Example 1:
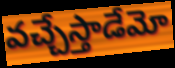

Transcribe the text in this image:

వచ్చేస్తాడేమో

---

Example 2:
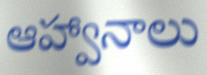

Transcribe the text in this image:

ఆహ్వానాలు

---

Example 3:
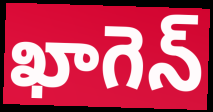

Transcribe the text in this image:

ఖాగెన్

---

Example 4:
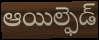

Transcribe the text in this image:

ఆయిల్ఫెడ్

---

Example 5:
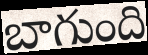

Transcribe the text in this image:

బాగుంది